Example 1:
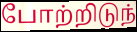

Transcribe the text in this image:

போற்றிடுந்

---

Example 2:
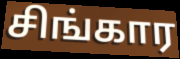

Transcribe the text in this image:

சிங்கார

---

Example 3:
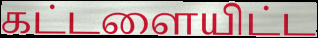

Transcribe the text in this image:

கட்டளையிட்ட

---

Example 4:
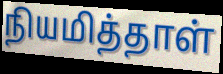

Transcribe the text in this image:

நியமித்தாள்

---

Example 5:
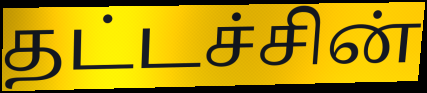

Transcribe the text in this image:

தட்டச்சின்